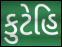
કુટેહિ